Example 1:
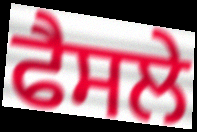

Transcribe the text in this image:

ਫੈਸਲੇ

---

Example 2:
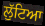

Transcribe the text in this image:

ਲੁੱਟਿਆ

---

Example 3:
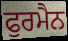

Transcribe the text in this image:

ਫੁਰਮੈਨ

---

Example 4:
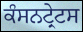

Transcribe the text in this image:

ਕੰਸਨਟ੍ਰੇਟਸ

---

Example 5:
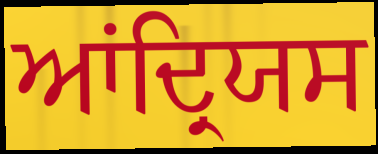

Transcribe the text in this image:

ਆਂਦ੍ਰਿਯਸ